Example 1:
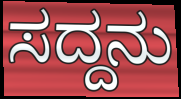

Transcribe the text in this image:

ಸದ್ದನು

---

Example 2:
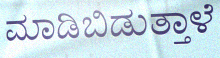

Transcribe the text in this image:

ಮಾಡಿಬಿಡುತ್ತಾಳೆ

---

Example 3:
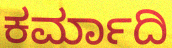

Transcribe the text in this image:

ಕರ್ಮಾದಿ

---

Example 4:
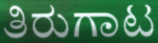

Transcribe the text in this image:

ತಿರುಗಾಟ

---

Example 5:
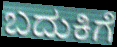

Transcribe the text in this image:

ಬದುಕಿಗೆ